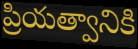
ప్రియత్వానికి